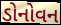
ડોનોવન